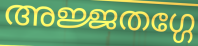
അജ്ജതഗ്ഗേ